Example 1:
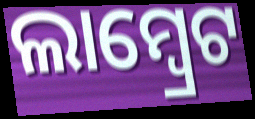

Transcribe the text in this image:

ଲାମ୍ୱ୍ରେଟ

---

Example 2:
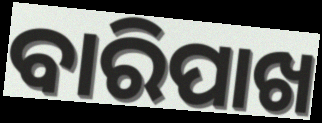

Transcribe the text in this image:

ବାରିପାଖ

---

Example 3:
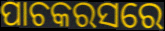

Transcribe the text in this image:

ପାଚକରସରେ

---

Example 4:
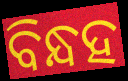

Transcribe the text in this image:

ବିନ୍ଧହ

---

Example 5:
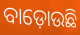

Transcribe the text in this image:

ବାଡ଼ୋଉଛି